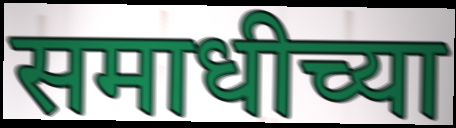
समाधीच्या